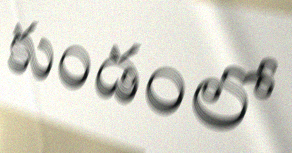
కుండంలో